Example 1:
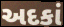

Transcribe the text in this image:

અદકાં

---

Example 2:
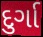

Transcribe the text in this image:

દુર્ગા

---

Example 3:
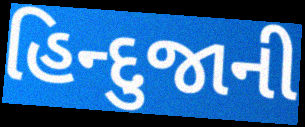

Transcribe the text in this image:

હિન્દુજાની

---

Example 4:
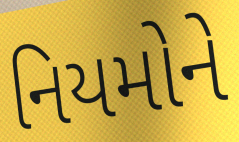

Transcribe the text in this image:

નિયમોને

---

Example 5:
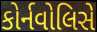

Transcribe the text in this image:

કોર્નવોલિસે